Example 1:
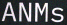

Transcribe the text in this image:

ANMs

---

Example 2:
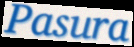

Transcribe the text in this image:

Pasura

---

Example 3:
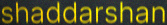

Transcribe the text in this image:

shaddarshan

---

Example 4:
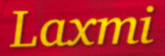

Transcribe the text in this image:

Laxmi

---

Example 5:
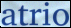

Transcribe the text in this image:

atrio